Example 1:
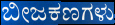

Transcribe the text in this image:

ಬೀಜಕಣಗಳು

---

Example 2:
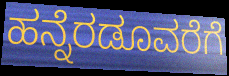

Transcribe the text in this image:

ಹನ್ನೆರಡೂವರೆಗೆ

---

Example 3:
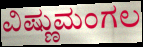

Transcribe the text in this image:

ವಿಷ್ಣುಮಂಗಲ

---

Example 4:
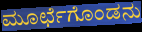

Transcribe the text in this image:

ಮೂರ್ಛೆಗೊಂಡನು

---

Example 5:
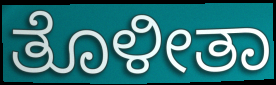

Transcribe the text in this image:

ತೊಳೀತಾ